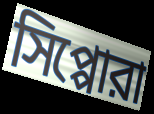
সিপ্পোরা